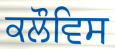
ਕਲੌਵਿਸ